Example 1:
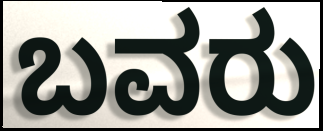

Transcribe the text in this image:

ಬವರು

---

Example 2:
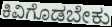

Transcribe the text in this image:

ಕಿವಿಗೊಡಬೇಕು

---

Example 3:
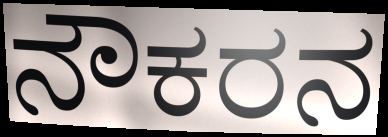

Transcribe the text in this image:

ನೌಕರನ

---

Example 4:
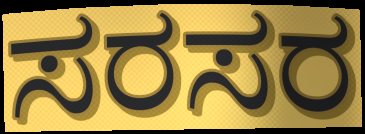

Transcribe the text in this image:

ಸರಸರ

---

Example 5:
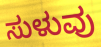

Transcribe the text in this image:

ಸುಳುವು